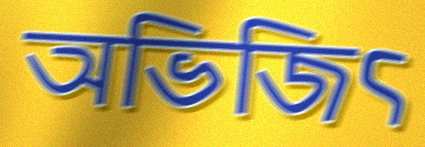
অভিজিৎ